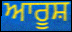
ਆਰੂਸ਼